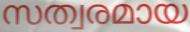
സത്വരമായ